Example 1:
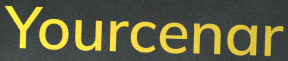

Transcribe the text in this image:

Yourcenar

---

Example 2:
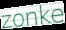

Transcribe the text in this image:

zonke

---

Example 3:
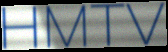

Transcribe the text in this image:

HMTV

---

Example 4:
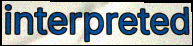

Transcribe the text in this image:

interpreted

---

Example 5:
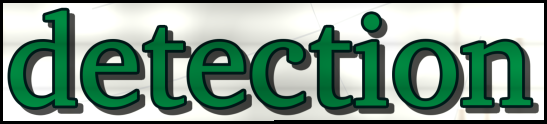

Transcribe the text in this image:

detection